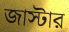
জাস্টার